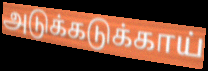
அடுக்கடுக்காய்